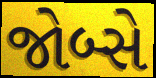
જોબ્સે